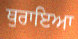
ਥੁਰਾਇਆ